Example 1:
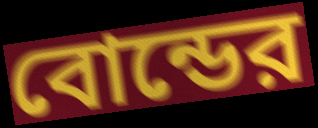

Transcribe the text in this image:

বোন্ডের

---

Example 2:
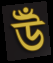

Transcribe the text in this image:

উঁ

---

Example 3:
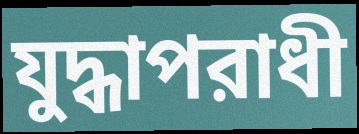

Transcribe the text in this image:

যুদ্ধাপরাধী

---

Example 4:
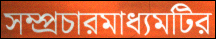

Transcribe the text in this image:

সম্প্রচারমাধ্যমটির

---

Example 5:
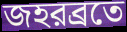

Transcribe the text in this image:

জহরব্রতে